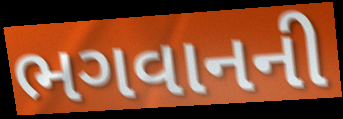
ભગવાનની